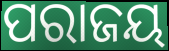
ପରାଜୟ